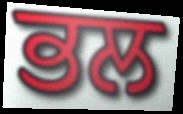
ਭਲ